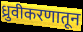
ध्रुवीकरणातून